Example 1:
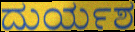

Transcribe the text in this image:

ದುರ್ಯಶ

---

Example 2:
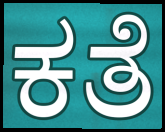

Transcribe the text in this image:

ಕತೆ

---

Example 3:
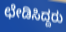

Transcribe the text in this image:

ಛೇಡಿಸಿದ್ದರು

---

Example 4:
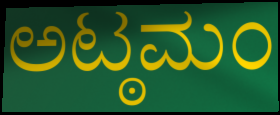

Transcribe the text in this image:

ಅಟ್ಠಮಂ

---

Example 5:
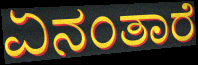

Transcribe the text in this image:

ಏನಂತಾರೆ